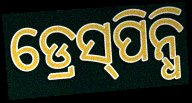
ଡ୍ରେସ୍‌ପିନ୍ଧି